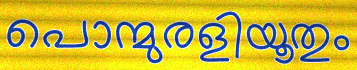
പൊന്മുരളിയൂതും